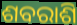
ଶବରାଶି